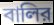
বালির